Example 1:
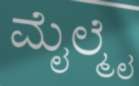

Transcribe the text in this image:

ಮೈಲ್ಮೈ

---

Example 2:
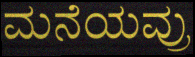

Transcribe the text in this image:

ಮನೆಯವ್ರು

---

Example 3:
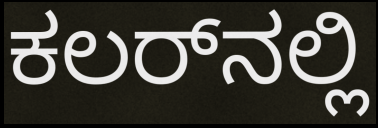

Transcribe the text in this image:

ಕಲರ್‌ನಲ್ಲಿ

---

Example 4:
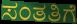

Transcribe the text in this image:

ಸಂತತಿಗೆ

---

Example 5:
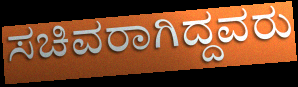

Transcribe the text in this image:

ಸಚಿವರಾಗಿದ್ದವರು